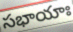
సభాయాః